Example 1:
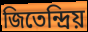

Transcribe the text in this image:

জিতেন্দ্রিয়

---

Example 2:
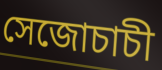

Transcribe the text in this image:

সেজোচাচী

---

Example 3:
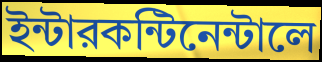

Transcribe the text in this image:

ইন্টারকন্টিনেন্টালে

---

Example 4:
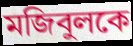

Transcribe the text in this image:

মজিবুলকে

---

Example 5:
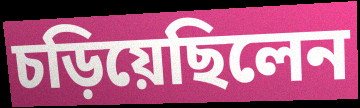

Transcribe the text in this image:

চড়িয়েছিলেন